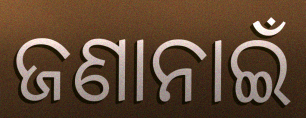
ଜଣାନାଇଁ